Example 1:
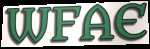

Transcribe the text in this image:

WFAE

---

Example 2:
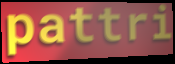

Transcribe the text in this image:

pattri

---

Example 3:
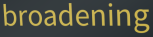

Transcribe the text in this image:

broadening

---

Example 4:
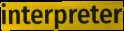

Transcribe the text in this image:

interpreter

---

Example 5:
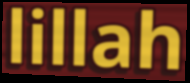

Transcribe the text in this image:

lillah